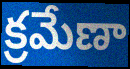
క్రమేణా